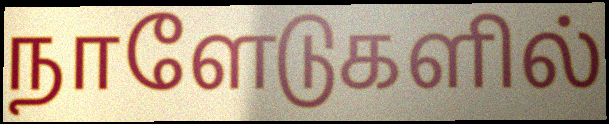
நாளேடுகளில்